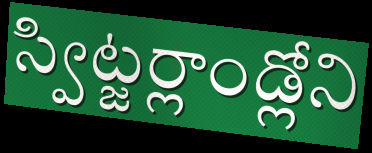
స్విట్జర్లాండ్లోని